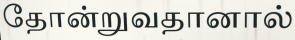
தோன்றுவதானால்